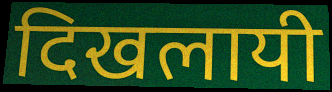
दिखलायी